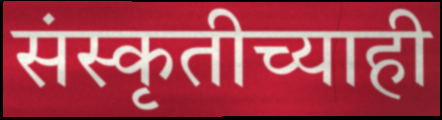
संस्कृतीच्याही